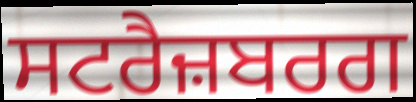
ਸਟਰੈਜ਼ਬਰਗ